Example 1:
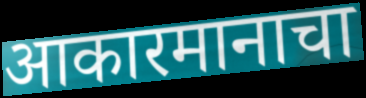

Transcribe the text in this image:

आकारमानाचा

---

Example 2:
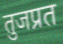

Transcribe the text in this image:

तुजप्रत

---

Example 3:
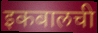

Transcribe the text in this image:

इकबालची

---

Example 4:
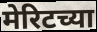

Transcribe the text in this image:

मेरिटच्या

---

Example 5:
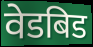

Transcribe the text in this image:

वेडबिड